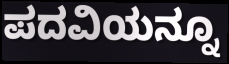
ಪದವಿಯನ್ನೂ